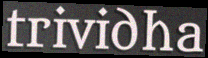
trividha